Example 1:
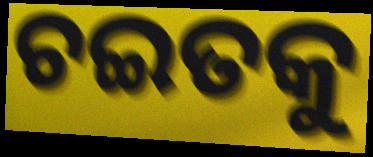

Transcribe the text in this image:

ଚଇତକୁ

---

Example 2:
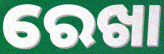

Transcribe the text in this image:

ରେଖା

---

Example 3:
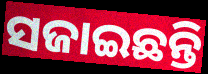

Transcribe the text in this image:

ସଜାଇଛନ୍ତି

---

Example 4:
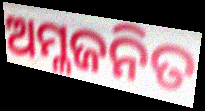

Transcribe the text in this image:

ଅମ୍ଳଜନିତ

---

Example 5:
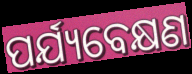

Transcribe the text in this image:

ପର୍ଯ୍ୟବେକ୍ଷଣ